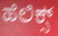
ಹೆಲಿಕ್ಸ್